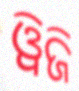
ୱିଜି